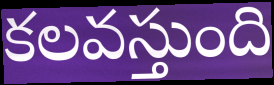
కలవస్తుంది